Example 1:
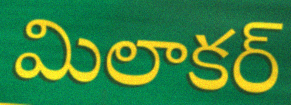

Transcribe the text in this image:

మిలాకర్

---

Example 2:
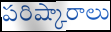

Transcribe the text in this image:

పరిష్కారాలు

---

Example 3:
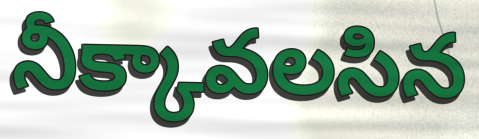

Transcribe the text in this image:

నీక్కావలసిన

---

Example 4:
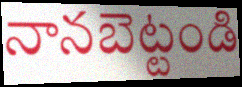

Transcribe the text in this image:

నానబెట్టండి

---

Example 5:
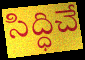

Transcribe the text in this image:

సిద్ధిచే